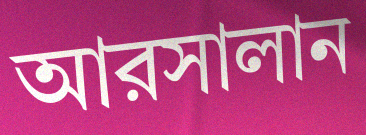
আরসালান